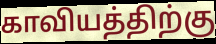
காவியத்திற்கு